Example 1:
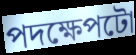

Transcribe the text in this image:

পদক্ষেপটো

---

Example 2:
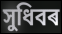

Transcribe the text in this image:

সুধিবৰ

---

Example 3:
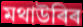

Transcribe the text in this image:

মথাউৰিৰ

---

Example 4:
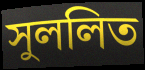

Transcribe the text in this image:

সুললিত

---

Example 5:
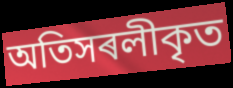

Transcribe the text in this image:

অতিসৰলীকৃত